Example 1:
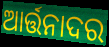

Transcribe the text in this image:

ଆର୍ତ୍ତନାଦର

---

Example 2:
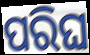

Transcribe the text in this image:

ପରିଘ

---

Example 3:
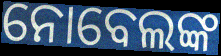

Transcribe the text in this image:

ନୋବେଲଙ୍କ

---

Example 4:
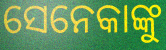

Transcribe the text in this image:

ସେନେକାଙ୍କୁ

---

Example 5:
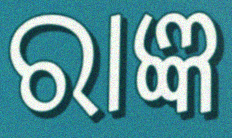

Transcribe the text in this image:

ରାଜ୍ଞ